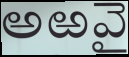
అఱవై